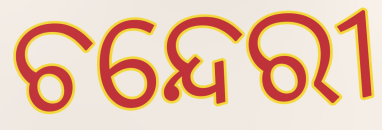
ଚନ୍ଦେରୀ